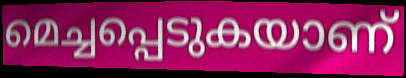
മെച്ചപ്പെടുകയാണ്